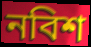
নবিশ